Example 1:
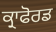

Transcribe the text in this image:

ਕ੍ਰਾਫੋਰਡ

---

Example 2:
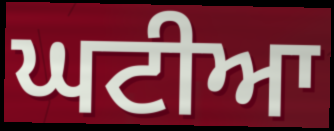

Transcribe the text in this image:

ਘਟੀਆ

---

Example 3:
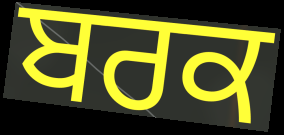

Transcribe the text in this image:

ਬਰਕ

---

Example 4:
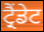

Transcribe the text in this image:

ਟ੍ਰੈਂਡੇਟ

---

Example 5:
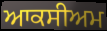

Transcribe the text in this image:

ਆਕਸੀਅਮ